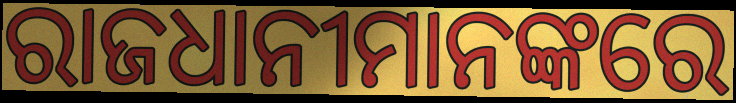
ରାଜଧାନୀମାନଙ୍କରେ